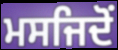
ਮਸਜਿਦੋਂ